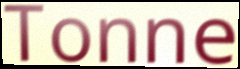
Tonne